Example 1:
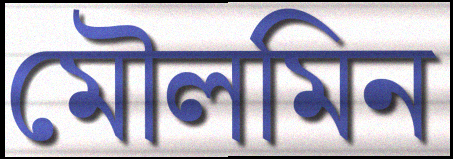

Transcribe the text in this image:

মৌলমিন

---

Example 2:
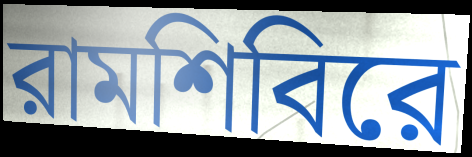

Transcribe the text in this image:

রামশিবিরে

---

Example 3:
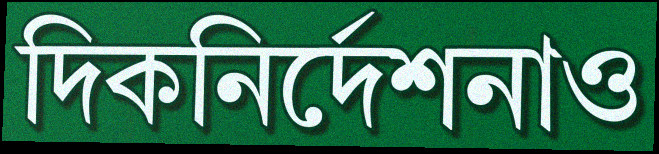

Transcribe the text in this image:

দিকনির্দেশনাও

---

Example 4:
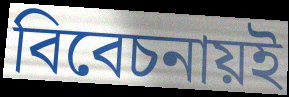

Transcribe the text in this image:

বিবেচনায়ই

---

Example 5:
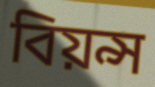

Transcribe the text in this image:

বিয়ন্স